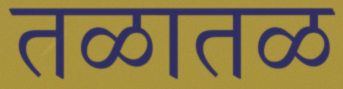
तळातळ